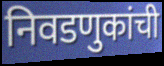
निवडणुकांची